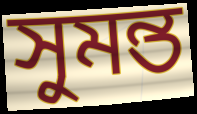
সুমন্ত